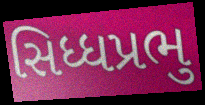
સિધ્ધપ્રભુ